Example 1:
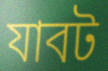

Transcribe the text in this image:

যাবট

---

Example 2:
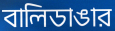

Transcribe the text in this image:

বালিডাঙার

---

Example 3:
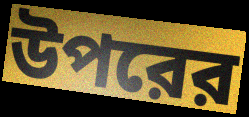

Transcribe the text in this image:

উপরের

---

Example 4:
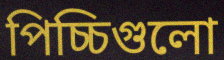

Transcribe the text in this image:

পিচ্চিগুলো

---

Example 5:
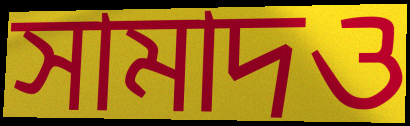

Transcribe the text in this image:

সামাদও